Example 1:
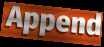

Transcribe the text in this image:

Append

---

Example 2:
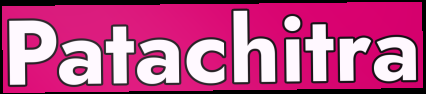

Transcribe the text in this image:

Patachitra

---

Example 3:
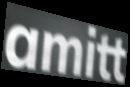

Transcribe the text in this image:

amitt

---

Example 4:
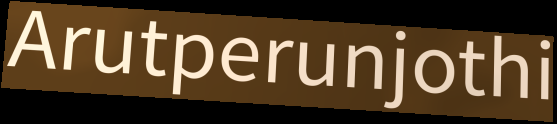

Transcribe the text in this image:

Arutperunjothi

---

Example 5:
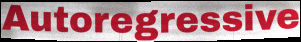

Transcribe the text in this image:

Autoregressive